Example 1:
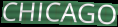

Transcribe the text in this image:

CHICAGO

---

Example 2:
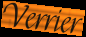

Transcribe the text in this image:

Verrier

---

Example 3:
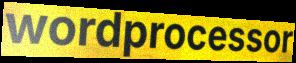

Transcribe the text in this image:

wordprocessor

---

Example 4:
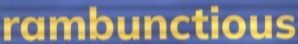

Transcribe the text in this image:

rambunctious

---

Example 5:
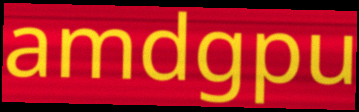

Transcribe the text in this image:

amdgpu